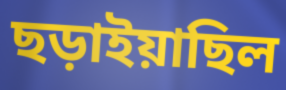
ছড়াইয়াছিল